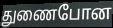
துணைபோன